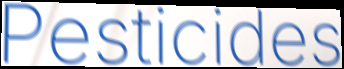
Pesticides